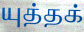
யுத்தக்